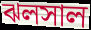
ঝলসাল